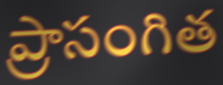
ప్రాసంగిత